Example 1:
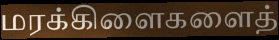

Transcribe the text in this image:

மரக்கிளைகளைத்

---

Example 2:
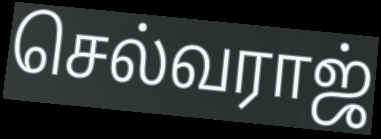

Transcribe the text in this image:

செல்வராஜ்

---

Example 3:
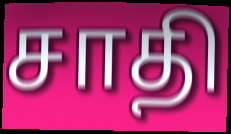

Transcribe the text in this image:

சாதி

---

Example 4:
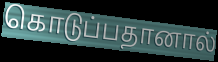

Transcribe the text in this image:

கொடுப்பதானால்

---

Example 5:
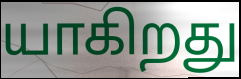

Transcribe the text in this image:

யாகிறது